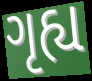
ગૃહ્ય